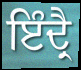
ਇੰਦ੍ਰੈ